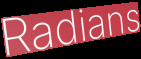
Radians